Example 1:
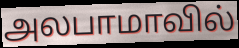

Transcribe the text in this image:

அலபாமாவில்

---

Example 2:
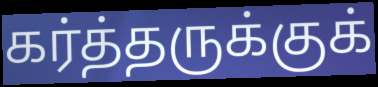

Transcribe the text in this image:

கர்த்தருக்குக்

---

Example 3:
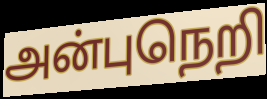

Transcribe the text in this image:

அன்புநெறி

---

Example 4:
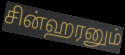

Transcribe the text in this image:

சின்ஹரனும்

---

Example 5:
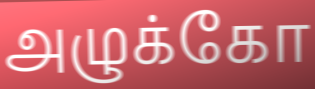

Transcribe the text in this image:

அழுக்கோ